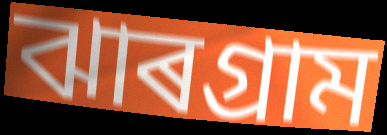
ঝাৰগ্ৰাম